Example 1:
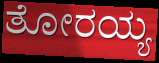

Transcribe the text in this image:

ತೋರಯ್ಯ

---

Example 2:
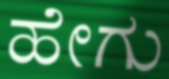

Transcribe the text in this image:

ಹೇಗು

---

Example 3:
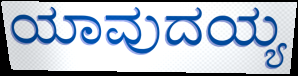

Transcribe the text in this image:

ಯಾವುದಯ್ಯ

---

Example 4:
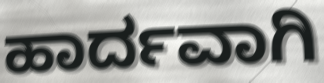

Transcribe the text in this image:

ಹಾರ್ದವಾಗಿ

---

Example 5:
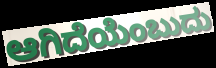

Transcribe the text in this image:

ಆಗಿದೆಯೆಂಬುದು